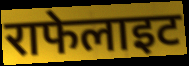
राफेलाइट